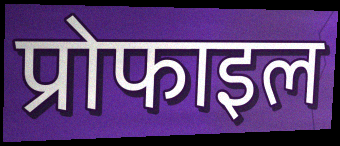
प्रोफाइल